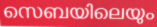
സെബയിലെയും